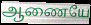
ஆணையே